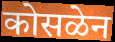
कोसळेन